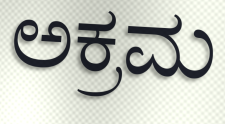
ಅಕ್ರಮ